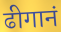
ढीगानं